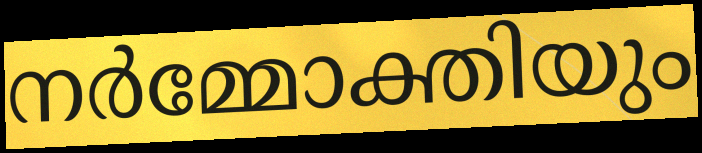
നർമ്മോക്തിയും